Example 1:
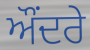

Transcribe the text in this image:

ਔਂਦਰੇ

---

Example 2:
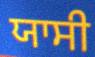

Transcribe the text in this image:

ਯਾਸੀ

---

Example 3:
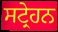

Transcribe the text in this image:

ਸਟ੍ਰੇਹਨ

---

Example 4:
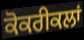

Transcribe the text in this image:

ਕੋਕਰੀਕਲਾਂ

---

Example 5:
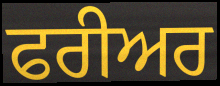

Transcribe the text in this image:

ਫਰੀਅਰ